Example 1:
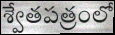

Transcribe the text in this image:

శ్వేతపత్రంలో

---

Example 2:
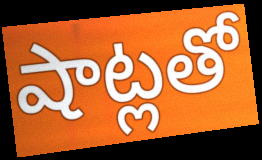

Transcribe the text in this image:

షాట్లతో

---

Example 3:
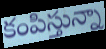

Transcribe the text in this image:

కంపిస్తున్నా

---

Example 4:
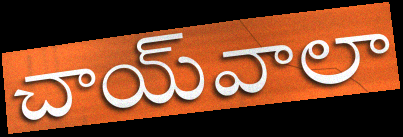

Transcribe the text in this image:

చాయ్‌వాలా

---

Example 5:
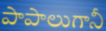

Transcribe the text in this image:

పాపాలుగానీ